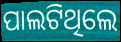
ପାଲଟିଥିଲେ